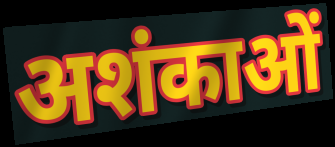
अशंकाओं